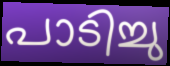
പാടിച്ചു